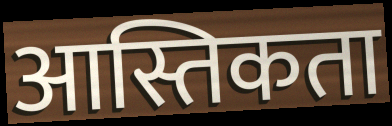
आस्तिकता